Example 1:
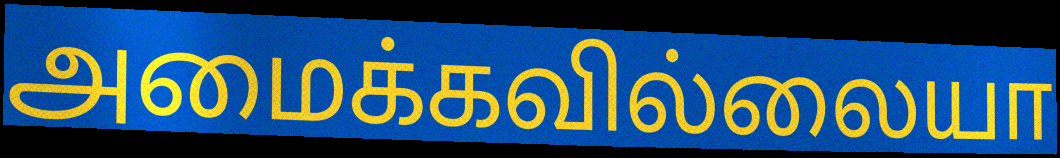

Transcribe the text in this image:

அமைக்கவில்லையா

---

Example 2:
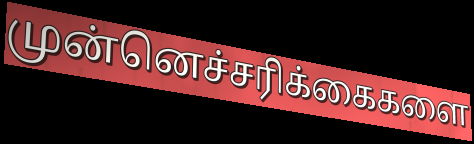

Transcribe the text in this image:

முன்னெச்சரிக்கைகளை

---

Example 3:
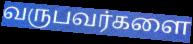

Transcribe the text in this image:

வருபவர்களை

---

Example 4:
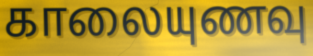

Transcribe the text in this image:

காலையுணவு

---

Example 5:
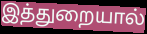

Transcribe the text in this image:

இத்துறையால்